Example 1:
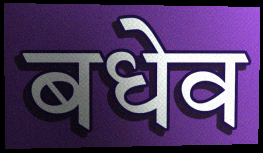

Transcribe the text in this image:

बधेव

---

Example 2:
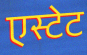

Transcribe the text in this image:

एस्टेट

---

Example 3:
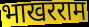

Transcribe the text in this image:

भाखरराम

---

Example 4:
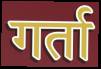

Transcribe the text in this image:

गर्ता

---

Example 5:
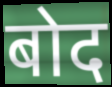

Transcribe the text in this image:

बोद